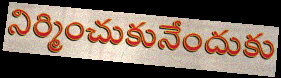
నిర్మించుకునేందుకు